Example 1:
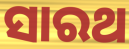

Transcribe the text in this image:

ସାରଥ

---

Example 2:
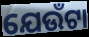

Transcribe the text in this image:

ଯେଉଁଟା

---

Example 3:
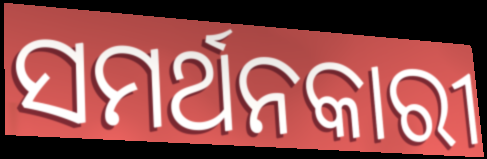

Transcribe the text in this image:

ସମର୍ଥନକାରୀ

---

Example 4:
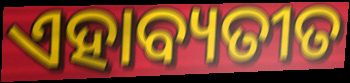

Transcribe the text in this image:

ଏହାବ୍ୟତୀତ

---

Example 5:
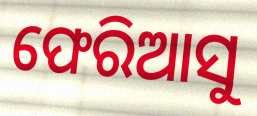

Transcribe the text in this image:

ଫେରିଆସୁ